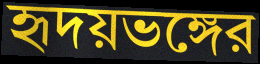
হৃদয়ভঙ্গের